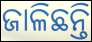
ଜାଳିଛନ୍ତି